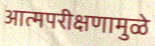
आत्मपरीक्षणामुळे